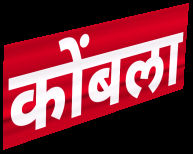
कोंबला